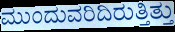
ಮುಂದುವರಿದಿರುತ್ತಿತ್ತು